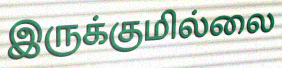
இருக்குமில்லை